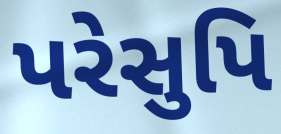
પરેસુપિ